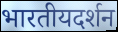
भारतीयदर्शन